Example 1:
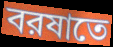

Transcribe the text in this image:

বরষাতে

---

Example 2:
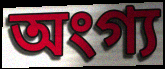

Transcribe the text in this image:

অংগ্য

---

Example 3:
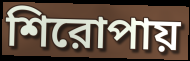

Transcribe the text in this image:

শিরোপায়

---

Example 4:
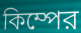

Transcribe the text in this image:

কিম্পের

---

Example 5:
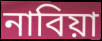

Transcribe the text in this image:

নাবিয়া